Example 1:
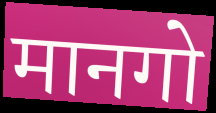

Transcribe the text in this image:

मानगो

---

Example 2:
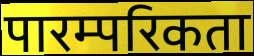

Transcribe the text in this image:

पारम्परिकता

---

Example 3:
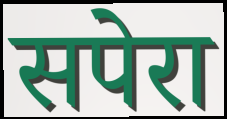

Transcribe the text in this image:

सपेरा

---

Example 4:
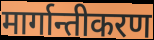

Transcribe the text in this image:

मार्गान्तीकरण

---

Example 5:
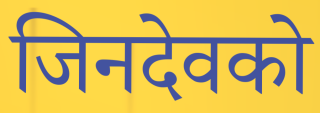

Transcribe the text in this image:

जिनदेवको